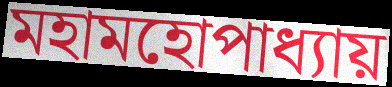
মহামহোপাধ্যায়